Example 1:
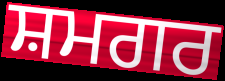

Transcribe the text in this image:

ਸ਼ਮਗਰ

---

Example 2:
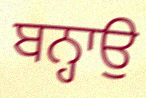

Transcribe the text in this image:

ਬਨ੍ਹਾਉ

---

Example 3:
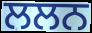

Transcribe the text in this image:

ਲਲਨ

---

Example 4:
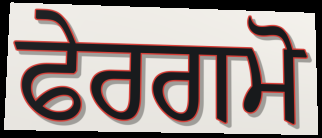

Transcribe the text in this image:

ਫੇਰਗਮੋ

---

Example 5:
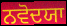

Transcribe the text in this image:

ਨਵੋਦਯਾ